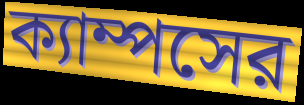
ক্যাম্পসের